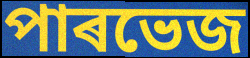
পাৰভেজ